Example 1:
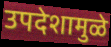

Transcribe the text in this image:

उपदेशामुळे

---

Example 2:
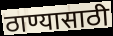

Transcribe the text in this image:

ठाण्यासाठी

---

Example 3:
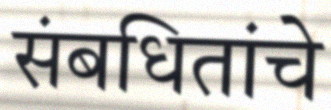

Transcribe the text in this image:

संबधितांचे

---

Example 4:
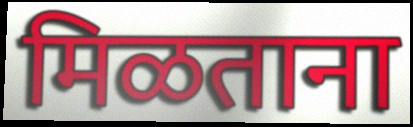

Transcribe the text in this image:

मिळताना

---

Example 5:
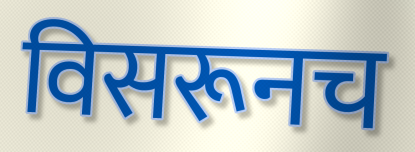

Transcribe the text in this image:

विसरूनच